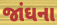
જાંઘના